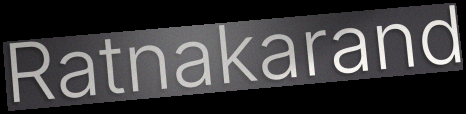
Ratnakarand